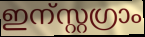
ഇന്സ്റ്റഗ്രാം